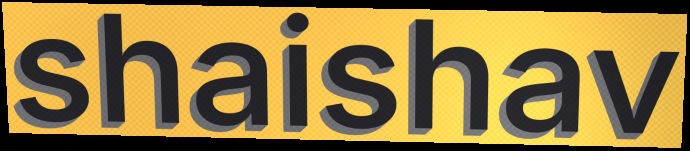
shaishav